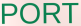
PORT